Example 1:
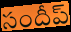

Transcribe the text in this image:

సందీప్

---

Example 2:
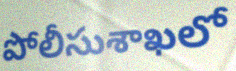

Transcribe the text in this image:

పోలీసుశాఖలో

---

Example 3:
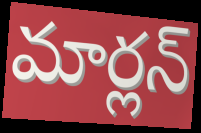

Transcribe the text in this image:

మార్లన్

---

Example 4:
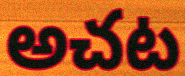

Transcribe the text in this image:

అచట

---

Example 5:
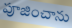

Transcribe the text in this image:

పూజించాను